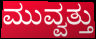
ಮುವ್ವತ್ತು